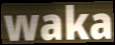
waka